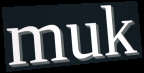
muk